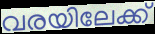
വരയിലേക്ക്